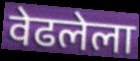
वेढलेला